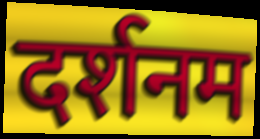
दर्शनम